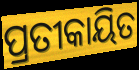
ପ୍ରତୀକାୟିତ